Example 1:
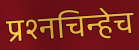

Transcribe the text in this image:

प्रश्नचिन्हेच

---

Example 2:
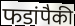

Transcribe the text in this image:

फडांपैकी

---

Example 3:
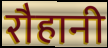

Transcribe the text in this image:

रौहानी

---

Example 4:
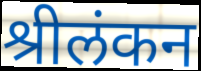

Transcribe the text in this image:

श्रीलंकन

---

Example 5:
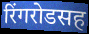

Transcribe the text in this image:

रिंगरोडसह